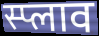
स्प्लाव